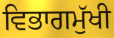
ਵਿਭਾਗਮੁੱਖੀ